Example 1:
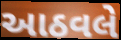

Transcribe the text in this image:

આઠવલે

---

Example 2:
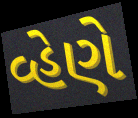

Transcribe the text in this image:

વ્હેણે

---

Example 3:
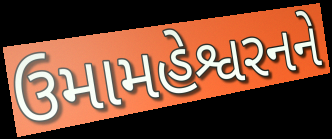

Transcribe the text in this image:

ઉમામહેશ્વરનને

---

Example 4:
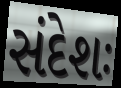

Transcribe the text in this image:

સંદેશઃ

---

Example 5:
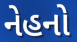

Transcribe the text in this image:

નેહનો